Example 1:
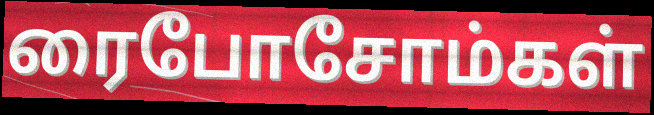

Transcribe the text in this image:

ரைபோசோம்கள்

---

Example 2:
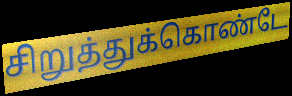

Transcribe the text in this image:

சிறுத்துக்கொண்டே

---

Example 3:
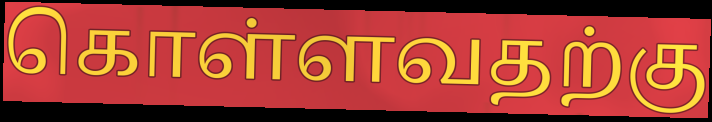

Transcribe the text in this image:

கொள்ளவதற்கு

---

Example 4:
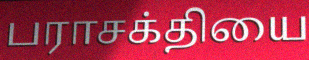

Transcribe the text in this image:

பராசக்தியை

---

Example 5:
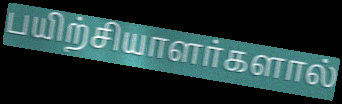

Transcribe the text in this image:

பயிற்சியாளர்களால்